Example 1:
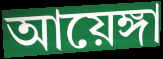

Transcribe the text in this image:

আয়েঙ্গা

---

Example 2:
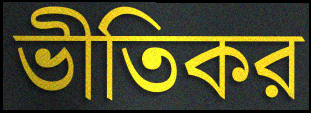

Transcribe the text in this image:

ভীতিকর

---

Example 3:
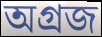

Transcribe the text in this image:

অগ্রজ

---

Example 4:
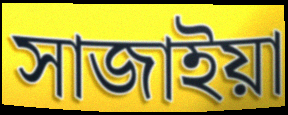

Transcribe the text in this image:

সাজাইয়া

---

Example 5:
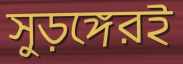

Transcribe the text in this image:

সুড়ঙ্গেরই